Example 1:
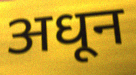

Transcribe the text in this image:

अधून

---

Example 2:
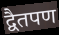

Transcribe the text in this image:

द्वैतपण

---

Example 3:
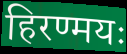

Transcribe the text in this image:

हिरण्मयः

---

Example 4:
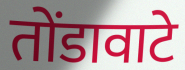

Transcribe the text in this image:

तोंडावाटे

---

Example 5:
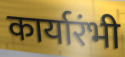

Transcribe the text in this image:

कार्यारंभी